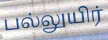
பல்லுயிர்